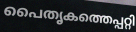
പൈതൃകത്തെപ്പറ്റി